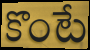
కొంటే